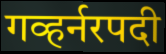
गव्हर्नरपदी